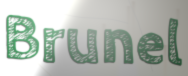
Brunel